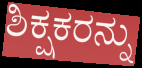
ಶಿಕ್ಷಕರನ್ನು